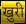
खुरी